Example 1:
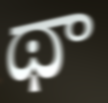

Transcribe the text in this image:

థా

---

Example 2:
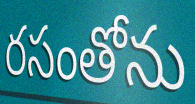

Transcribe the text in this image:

రసంతోను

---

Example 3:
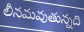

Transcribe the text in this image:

లీనమవుతున్నది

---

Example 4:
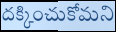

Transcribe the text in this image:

దక్కించుకోమని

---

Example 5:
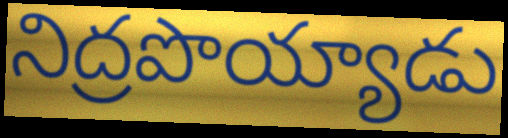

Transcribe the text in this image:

నిద్రపొయ్యాడు